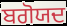
ਬਗੋਯਦ